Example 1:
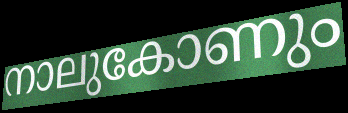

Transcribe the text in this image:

നാലുകോണും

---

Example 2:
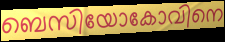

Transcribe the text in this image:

ബെസിയോകോവിനെ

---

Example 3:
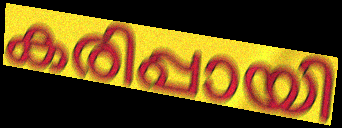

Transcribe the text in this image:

കരിപ്പായി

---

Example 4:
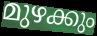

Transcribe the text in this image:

മുഴക്കും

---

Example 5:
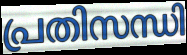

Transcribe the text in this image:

പ്രതിസന്ധി